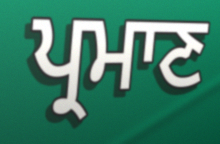
ਪ੍ਰਮਾਣ